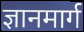
ज्ञानमार्ग